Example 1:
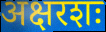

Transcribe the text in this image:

अक्षरशः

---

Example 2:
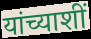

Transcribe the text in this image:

यांच्याशीं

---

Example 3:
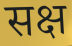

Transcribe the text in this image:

सक्ष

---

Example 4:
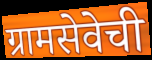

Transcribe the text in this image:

ग्रामसेवेची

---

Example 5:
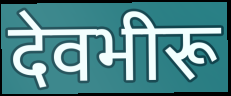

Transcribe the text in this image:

देवभीरू